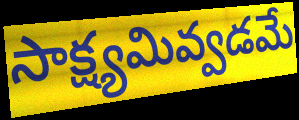
సాక్ష్యమివ్వడమే